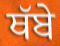
ਥੱਬੇ